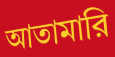
আতামারি